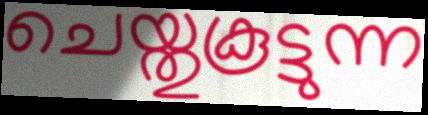
ചെയ്തുകൂട്ടുന്ന